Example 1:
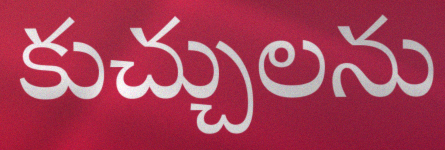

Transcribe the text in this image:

కుచ్చులను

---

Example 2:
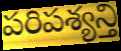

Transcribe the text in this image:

పరిపశ్యన్తి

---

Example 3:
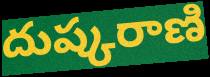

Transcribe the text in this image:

దుష్కరాణి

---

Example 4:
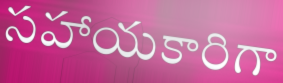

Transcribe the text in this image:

సహాయకారిగా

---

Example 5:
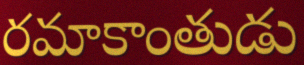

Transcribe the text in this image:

రమాకాంతుడు